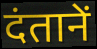
दंतानें